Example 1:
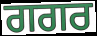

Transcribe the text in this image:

ਗਗਰ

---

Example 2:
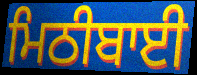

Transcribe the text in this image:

ਮਿਠੀਬਾਈ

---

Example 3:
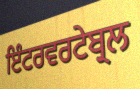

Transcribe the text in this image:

ਇੰਟਰਵਰਟੇਬ੍ਰਲ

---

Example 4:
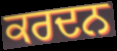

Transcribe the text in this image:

ਕਰਦਨ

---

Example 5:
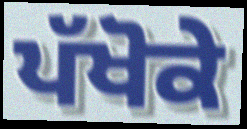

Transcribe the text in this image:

ਪੱਖੋਕੇ